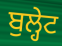
ਬੁਲ੍ਹੇਟ